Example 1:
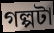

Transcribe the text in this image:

গল্পটা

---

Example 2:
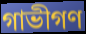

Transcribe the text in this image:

গাভীগণ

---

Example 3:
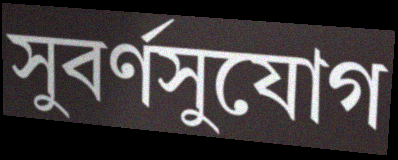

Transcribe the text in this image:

সুবর্ণসুযোগ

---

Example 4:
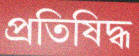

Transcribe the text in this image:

প্রতিষিদ্ধ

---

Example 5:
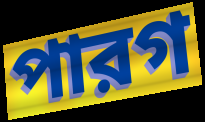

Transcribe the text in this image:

পারগ